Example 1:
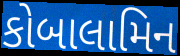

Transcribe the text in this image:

કોબાલામિન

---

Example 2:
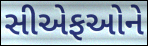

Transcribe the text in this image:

સીએફઓને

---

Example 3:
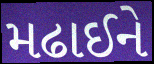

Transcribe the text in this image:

મઢાઈને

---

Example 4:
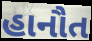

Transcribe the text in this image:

હાનૌત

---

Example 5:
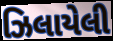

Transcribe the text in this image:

ઝિલાયેલી